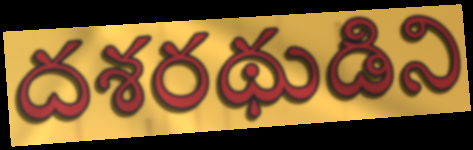
దశరథుడిని